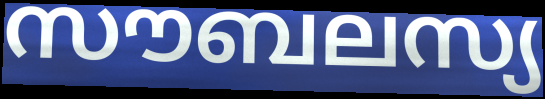
സൗബലസ്യ